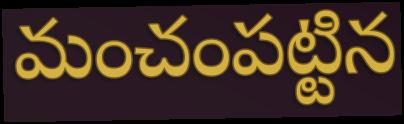
మంచంపట్టిన